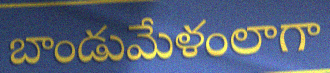
బాండుమేళంలాగా